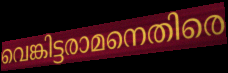
വെങ്കിട്ടരാമനെതിരെ